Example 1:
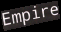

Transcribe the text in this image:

Empire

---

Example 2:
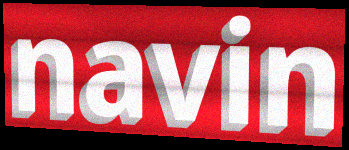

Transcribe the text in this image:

navin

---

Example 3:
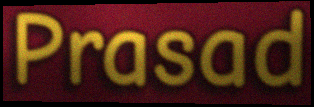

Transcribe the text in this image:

Prasad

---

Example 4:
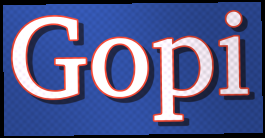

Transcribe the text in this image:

Gopi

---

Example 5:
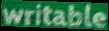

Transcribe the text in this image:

writable